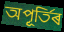
অপূৰ্তিৰ